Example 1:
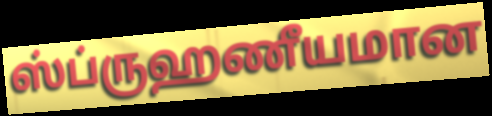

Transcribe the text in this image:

ஸ்ப்ருஹணீயமான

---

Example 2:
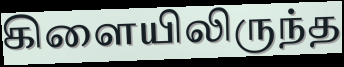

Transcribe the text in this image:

கிளையிலிருந்த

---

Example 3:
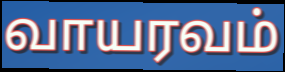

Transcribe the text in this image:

வாயரவம்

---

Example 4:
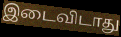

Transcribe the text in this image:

இடைவிடாது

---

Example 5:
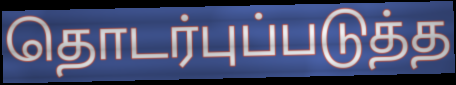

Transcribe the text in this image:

தொடர்புப்படுத்த